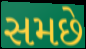
સમછે